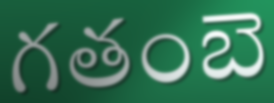
గతంబె